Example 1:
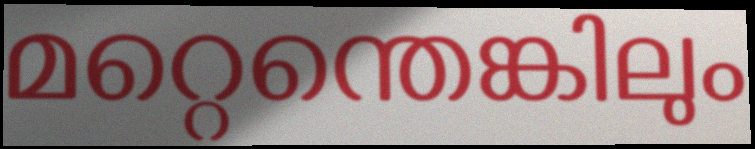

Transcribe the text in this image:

മറ്റെന്തെങ്കിലും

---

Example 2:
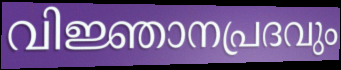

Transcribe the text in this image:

വിജ്ഞാനപ്രദവും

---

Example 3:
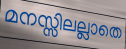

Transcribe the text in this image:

മനസ്സിലല്ലാതെ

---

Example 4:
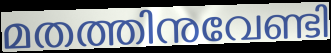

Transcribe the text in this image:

മതത്തിനുവേണ്ടി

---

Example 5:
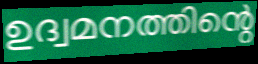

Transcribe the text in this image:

ഉദ്വമനത്തിന്റെ